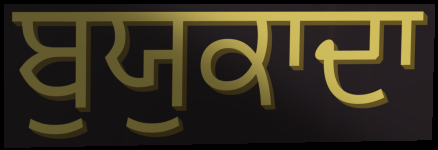
ਬੁਯੁਕਾਦਾ